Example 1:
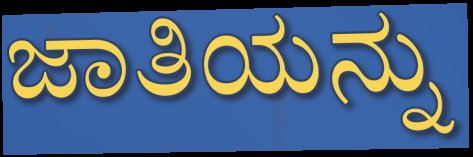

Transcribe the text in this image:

ಜಾತಿಯನ್ನು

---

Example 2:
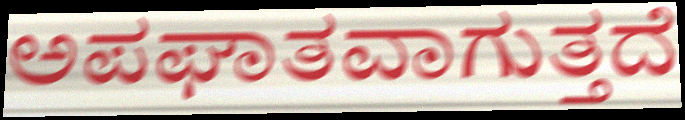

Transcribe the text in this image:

ಅಪಘಾತವಾಗುತ್ತದೆ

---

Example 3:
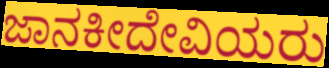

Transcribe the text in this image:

ಜಾನಕೀದೇವಿಯರು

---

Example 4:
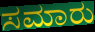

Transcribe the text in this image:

ಸಮಾರು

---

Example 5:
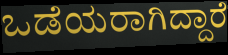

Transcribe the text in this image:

ಒಡೆಯರಾಗಿದ್ದಾರೆ